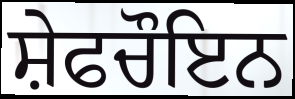
ਸ਼ੇਫਚੌਇਨ